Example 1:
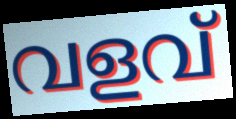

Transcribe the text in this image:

വളവ്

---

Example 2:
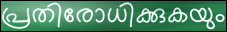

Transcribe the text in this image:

പ്രതിരോധിക്കുകയും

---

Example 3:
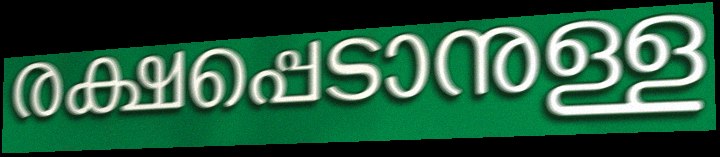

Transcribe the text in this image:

രക്ഷപ്പെടാനുള്ള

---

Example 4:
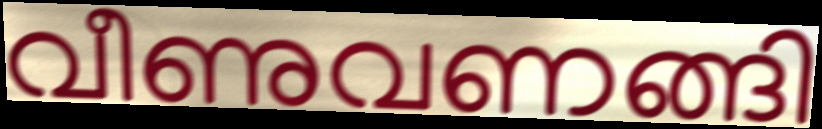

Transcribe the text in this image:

വീണുവണങ്ങി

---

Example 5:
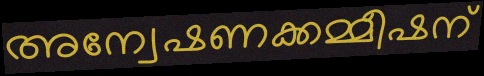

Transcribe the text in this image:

അന്വേഷണക്കമ്മീഷന്